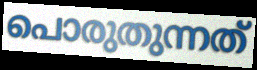
പൊരുതുന്നത്